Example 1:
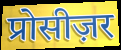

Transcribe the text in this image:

प्रोसीज़र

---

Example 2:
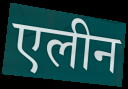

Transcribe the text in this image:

एलीन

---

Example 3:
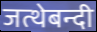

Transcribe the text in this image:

जत्थेबन्दी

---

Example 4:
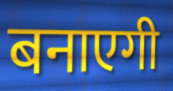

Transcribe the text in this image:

बनाएगी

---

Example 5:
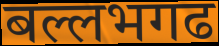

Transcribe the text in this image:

बल्लभगढ